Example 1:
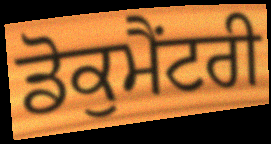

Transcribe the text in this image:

ਡੋਕੁਮੈਂਟਰੀ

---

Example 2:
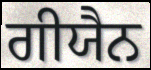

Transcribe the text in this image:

ਗੀਯੈਨ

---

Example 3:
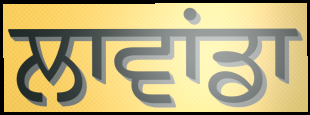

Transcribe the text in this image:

ਲਾਵਾਂਡਾ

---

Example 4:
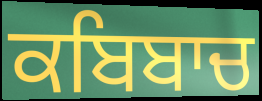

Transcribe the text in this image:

ਕਬਿਬਾਚ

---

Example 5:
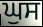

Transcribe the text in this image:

ਘੁਸ